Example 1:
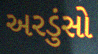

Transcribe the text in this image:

અરડુંસો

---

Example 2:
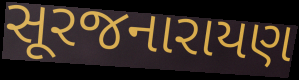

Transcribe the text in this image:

સૂરજનારાયણ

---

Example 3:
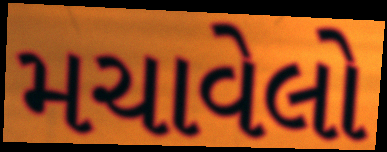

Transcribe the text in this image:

મચાવેલો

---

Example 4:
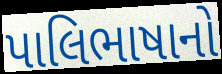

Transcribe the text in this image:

પાલિભાષાનો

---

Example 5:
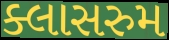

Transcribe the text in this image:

ક્લાસરુમ